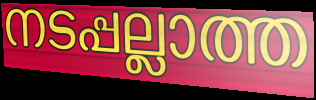
നടപ്പല്ലാത്ത